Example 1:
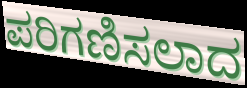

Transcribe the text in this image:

ಪರಿಗಣಿಸಲಾದ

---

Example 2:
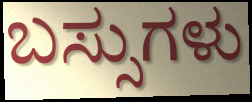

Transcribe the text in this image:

ಬಸ್ಸುಗಳು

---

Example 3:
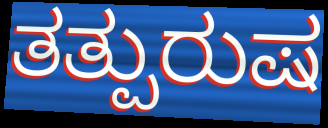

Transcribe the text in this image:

ತತ್ಪುರುಷ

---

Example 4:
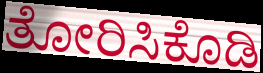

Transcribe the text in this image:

ತೋರಿಸಿಕೊಡಿ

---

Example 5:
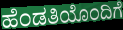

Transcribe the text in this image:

ಹೆಂಡತಿಯೊಂದಿಗೆ